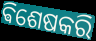
ଵିଶେଷକରି